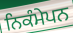
ਨਿਕੰਮੇਪਨ